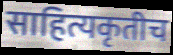
साहित्यकृतीच